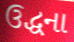
ઉદ્ધના